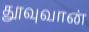
தூவுவான்